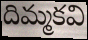
దిమ్మకవి